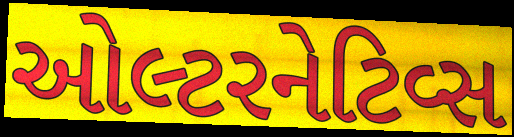
ઓલ્ટરનેટિવ્સ